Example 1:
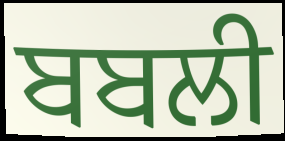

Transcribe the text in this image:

ਬਬਲੀ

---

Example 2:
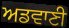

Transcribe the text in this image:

ਅਡਵਾਣੀ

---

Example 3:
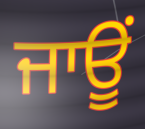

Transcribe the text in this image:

ਜਾਊਂ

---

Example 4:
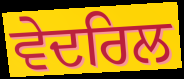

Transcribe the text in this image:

ਵੇਦਰਿਲ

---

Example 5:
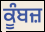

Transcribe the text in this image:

ਕੂੰਬਜ਼